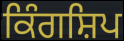
ਕਿੰਗਸ਼ਿਪ